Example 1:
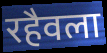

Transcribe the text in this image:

रहैवला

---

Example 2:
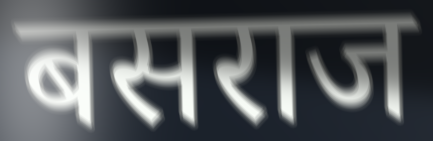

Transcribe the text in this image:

बसराज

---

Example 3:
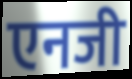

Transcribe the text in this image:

एनजी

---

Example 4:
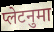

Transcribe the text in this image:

प्लेटनुमा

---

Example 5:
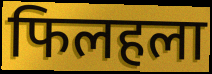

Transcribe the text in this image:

फिलहला